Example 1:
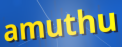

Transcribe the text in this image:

amuthu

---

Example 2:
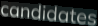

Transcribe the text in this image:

candidates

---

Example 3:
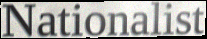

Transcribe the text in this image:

Nationalist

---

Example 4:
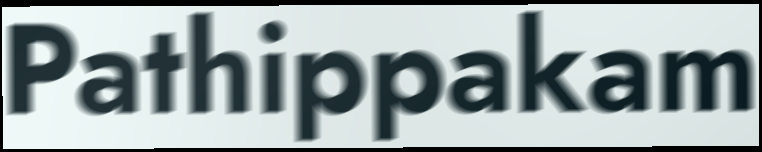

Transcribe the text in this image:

Pathippakam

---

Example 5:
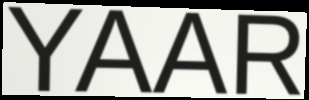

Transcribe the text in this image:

YAAR